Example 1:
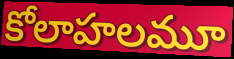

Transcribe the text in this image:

కోలాహలమూ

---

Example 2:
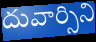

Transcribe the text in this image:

దువార్సిని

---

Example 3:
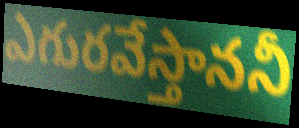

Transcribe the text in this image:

ఎగురవేస్తాననీ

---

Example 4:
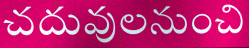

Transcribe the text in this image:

చదువులనుంచి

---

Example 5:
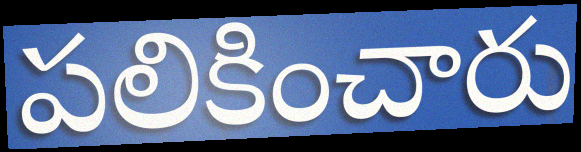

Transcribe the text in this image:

పలికించారు